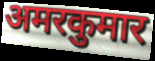
अमरकुमार